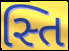
સ્તિ